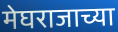
मेघराजाच्या